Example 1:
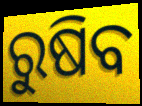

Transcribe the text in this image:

ରୁଷିବ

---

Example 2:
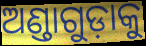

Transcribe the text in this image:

ଅଣ୍ଡାଗୁଡ଼ାକୁ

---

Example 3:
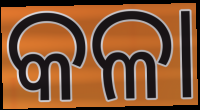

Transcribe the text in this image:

କଳା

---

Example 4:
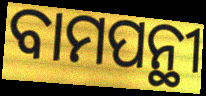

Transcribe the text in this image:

ବାମପନ୍ଥୀ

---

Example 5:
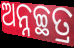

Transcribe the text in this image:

ଅନ୍ନଚ୍ଛତ୍ର